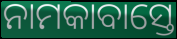
ନାମକାବାସ୍ତେ